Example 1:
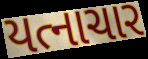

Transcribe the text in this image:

યત્નાચાર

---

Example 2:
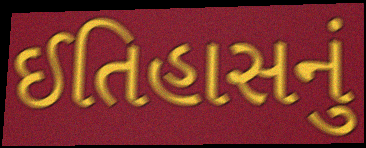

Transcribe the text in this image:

ઈતિહાસનું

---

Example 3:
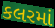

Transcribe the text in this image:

કલરમાં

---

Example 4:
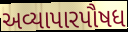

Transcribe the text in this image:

અવ્યાપારપૌષધ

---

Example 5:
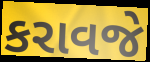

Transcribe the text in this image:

કરાવજે